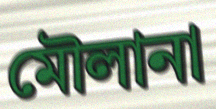
মৌলানা